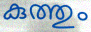
കുത്തും